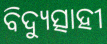
ବିଦ୍ୟୁତ୍ସାହୀ